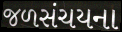
જળસંચયના